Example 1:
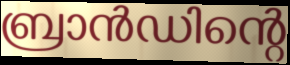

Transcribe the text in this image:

ബ്രാൻഡിന്റെ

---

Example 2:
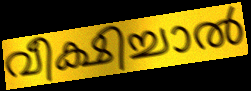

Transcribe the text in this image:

വീക്ഷിച്ചാൽ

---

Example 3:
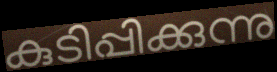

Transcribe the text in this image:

കുടിപ്പിക്കുന്നു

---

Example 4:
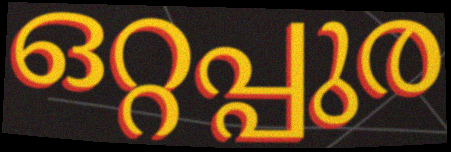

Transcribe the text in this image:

ഒറ്റപ്പുര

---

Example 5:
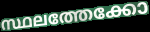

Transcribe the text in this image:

സ്ഥലത്തേക്കോ